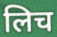
लिच